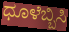
ಧೂಳೆಬ್ಬಿಸಿ